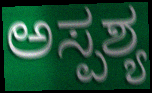
ಅಸ್ಪಶ್ಯ